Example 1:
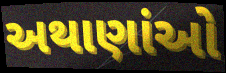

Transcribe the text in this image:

અથાણાંઓ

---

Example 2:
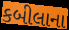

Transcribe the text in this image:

કબીલાના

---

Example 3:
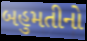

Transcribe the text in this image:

બહુમતીનો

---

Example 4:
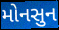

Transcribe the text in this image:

મોનસુન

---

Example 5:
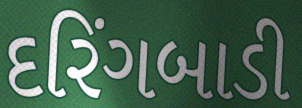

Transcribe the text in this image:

દરિંગબાડી